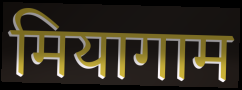
मियागाम